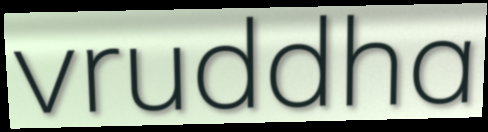
vruddha